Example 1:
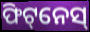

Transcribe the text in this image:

ଫିଟ୍‌ନେସ୍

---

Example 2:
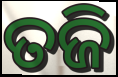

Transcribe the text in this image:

ତଜି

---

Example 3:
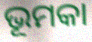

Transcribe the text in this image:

ଭୂମକା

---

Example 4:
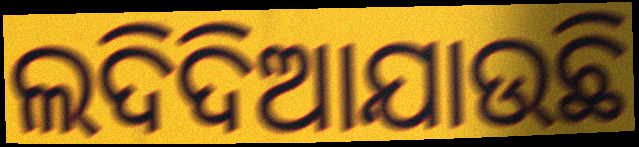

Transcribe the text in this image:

ଲଦିଦିଆଯାଉଛି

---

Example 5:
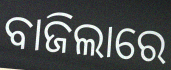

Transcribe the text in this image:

ବାଜିଲାରେ